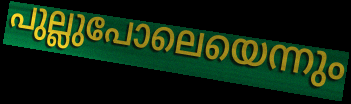
പുല്ലുപോലെയെന്നും